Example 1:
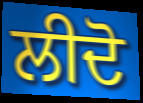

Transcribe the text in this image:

ਲੀਦੋ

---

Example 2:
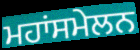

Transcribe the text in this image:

ਮਹਾਂਸਮੇਲਨ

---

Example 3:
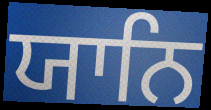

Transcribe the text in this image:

ਯਾਨਿ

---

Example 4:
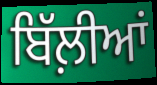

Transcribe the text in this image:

ਬਿੱਲ਼ੀਆਂ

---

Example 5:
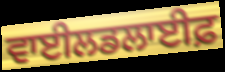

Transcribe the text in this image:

ਵਾਈਲਡਲਾਈਫ਼